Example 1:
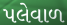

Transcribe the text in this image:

પલેવાળ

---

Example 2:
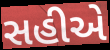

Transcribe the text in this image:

સહીએ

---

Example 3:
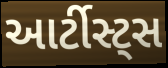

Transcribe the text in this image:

આર્ટીસ્ટ્સ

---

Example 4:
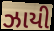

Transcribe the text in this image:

ઝાયી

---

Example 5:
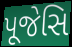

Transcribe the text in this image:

પૂજેસિ